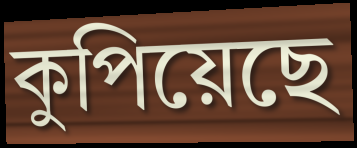
কুপিয়েছে